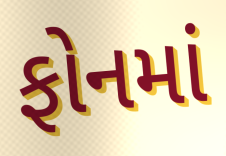
ફોનમાં